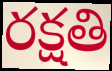
రక్షతి